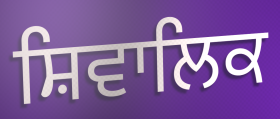
ਸ਼ਿਵਾਲਿਕ